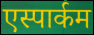
एस्पार्कम